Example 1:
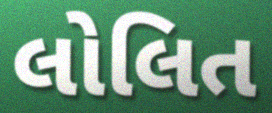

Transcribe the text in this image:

લોલિત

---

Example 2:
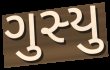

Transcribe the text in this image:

ગુસ્યુ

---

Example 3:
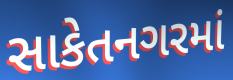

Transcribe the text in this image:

સાકેતનગરમાં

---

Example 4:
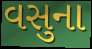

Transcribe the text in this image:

વસુના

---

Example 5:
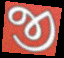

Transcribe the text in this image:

જી